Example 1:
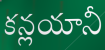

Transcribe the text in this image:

కన్లయానీ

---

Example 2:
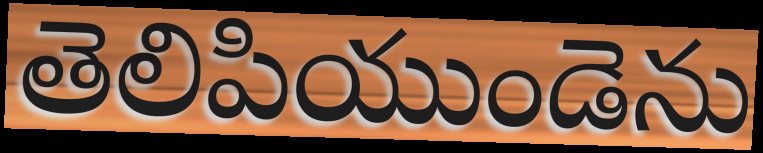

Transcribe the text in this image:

తెలిపియుండెను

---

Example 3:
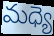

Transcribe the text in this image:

మధ్యె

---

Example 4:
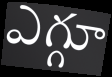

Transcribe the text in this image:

ఎగ్గూ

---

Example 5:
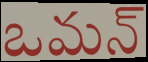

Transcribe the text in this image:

ఒమన్